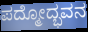
ಪದ್ಮೋದ್ಭವನ